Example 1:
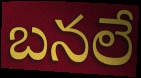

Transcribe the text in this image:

బనలే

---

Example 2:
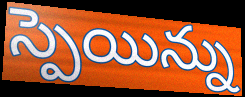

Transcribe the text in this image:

స్పెయిన్ను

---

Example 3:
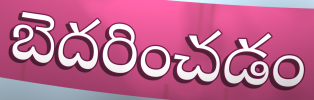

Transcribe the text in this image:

బెదరించడం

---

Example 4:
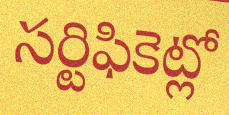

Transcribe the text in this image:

సర్టిఫికెట్లో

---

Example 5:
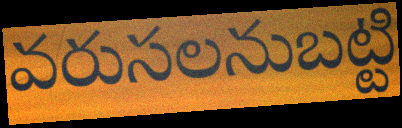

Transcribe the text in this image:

వరుసలనుబట్టి